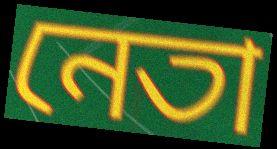
নেতা